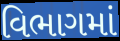
વિભાગમાં